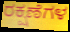
ರಕ್ಷಣೆಗಳ